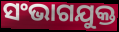
ସଂଭାଗଯୁକ୍ତ